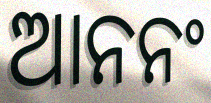
ଆନନଂ